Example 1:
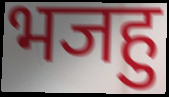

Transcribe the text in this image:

भजहु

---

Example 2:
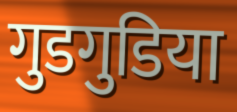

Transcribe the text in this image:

गुडगुडिया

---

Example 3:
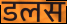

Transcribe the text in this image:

डलस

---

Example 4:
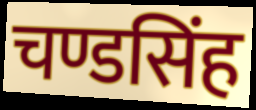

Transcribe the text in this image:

चण्डसिंह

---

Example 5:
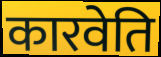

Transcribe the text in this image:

कारवेति